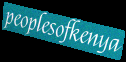
peoplesofkenya